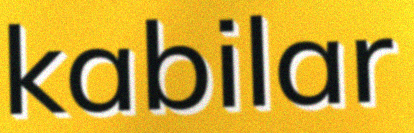
kabilar